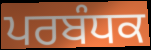
ਪਰਬੰਧਕ